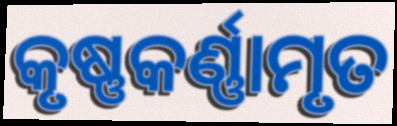
କୃଷ୍ଣକର୍ଣ୍ଣାମୃତ